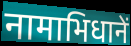
नामाभिधानें